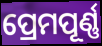
ପ୍ରେମପୂର୍ଣ୍ଣ